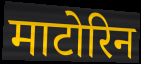
माटोरिन